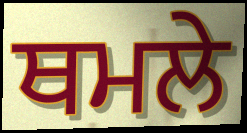
ਥਮਲੇ